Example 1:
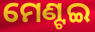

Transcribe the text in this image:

ମେଣ୍ଟଇ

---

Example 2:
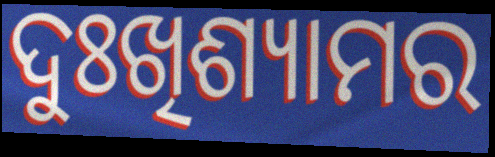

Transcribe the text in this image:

ଦୁଃଖିଶ୍ୟାମର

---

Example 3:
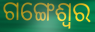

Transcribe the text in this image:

ଗଙ୍ଗେଶ୍ଵର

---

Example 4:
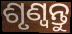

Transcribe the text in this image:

ଶୃଣ୍ଵନ୍ତୁ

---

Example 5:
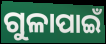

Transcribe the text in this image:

ଗୁଳାପାଇଁ